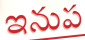
ఇనుప